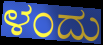
ಳಂದು